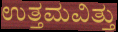
ಉತ್ತಮವಿತ್ತು